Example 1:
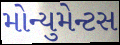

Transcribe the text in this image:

મોન્યુમેન્ટસ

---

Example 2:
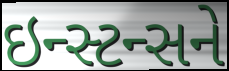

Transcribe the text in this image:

ઇન્સ્ટન્સને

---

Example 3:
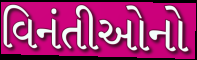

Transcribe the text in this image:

વિનંતીઓનો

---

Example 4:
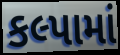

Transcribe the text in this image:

કલ્પામાં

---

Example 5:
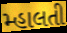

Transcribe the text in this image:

મ્હાલતી